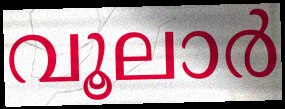
വൂലാർ